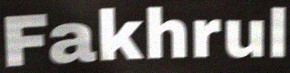
Fakhrul